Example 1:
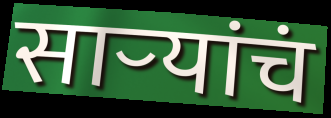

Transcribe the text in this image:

साऱ्यांचं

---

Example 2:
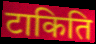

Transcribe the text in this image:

टाकिति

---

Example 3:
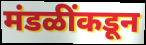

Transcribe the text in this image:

मंडळींकडून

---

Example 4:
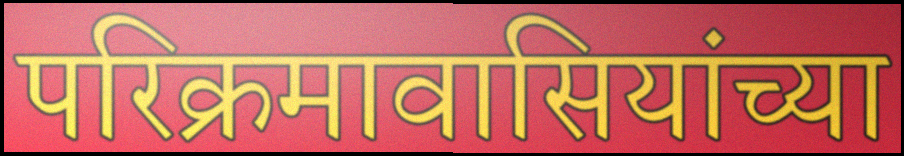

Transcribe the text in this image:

परिक्रमावासियांच्या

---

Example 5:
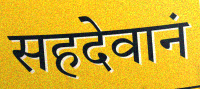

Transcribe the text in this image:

सहदेवानं